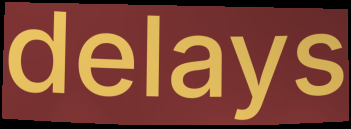
delays